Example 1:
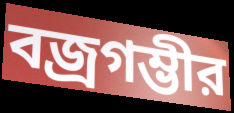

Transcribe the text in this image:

বজ্রগম্ভীর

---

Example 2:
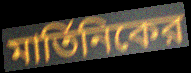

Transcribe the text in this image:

মার্তিনিকের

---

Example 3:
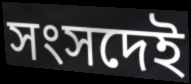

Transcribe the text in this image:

সংসদেই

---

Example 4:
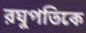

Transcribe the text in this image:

রঘুপতিকে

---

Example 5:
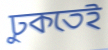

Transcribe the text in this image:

ঢুকতেই